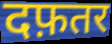
दफ़तर